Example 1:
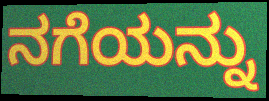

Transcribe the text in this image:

ನಗೆಯನ್ನು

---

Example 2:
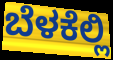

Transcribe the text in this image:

ಬೆಳಕೆಲ್ಲಿ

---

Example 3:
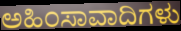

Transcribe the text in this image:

ಅಹಿಂಸಾವಾದಿಗಳು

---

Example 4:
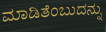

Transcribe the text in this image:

ಮಾಡಿತೆಂಬುದನ್ನು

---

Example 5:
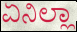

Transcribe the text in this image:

ಏನಿಲ್ಲಾ